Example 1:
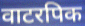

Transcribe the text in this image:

वाटरपिक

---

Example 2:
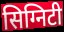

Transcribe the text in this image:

सिग्निटी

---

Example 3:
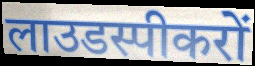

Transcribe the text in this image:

लाउडस्पीकरों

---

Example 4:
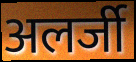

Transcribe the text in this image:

अलर्जी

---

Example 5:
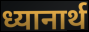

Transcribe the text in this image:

ध्यानार्थ